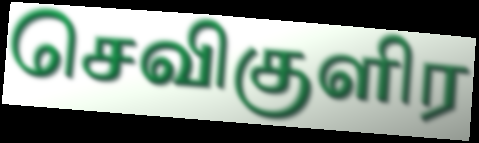
செவிகுளிர